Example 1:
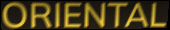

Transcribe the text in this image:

ORIENTAL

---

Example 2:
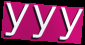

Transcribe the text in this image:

yyy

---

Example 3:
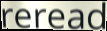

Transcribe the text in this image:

reread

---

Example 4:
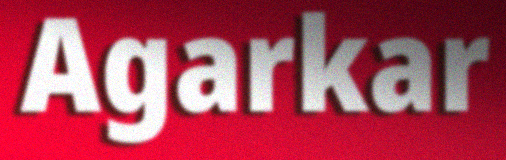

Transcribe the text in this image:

Agarkar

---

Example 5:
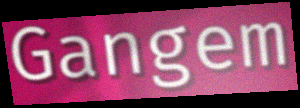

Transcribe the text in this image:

Gangem